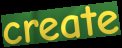
create